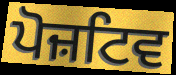
ਪੋਜ਼ਟਿਵ